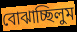
বোঝাচ্ছিলুম